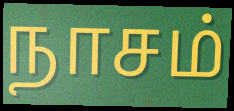
நாசம்